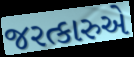
જરત્કારુએ